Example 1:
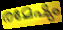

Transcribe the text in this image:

രമേഷും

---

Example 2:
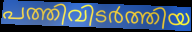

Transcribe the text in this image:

പത്തിവിടർത്തിയ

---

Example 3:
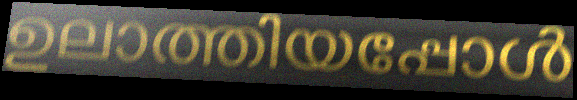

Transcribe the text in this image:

ഉലാത്തിയപ്പോൾ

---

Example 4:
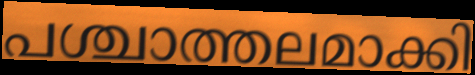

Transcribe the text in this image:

പശ്ചാത്തലമാക്കി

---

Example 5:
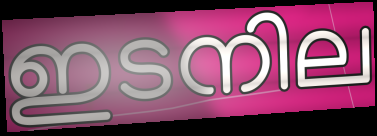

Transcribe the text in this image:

ഇടനില